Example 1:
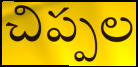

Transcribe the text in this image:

చిప్పల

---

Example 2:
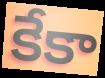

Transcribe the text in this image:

కేకా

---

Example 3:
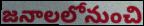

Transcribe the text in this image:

జనాలలోనుంచి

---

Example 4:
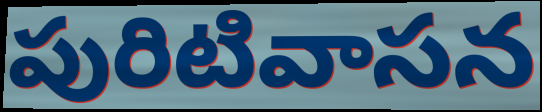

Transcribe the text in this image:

పురిటివాసన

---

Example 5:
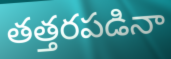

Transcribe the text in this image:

తత్తరపడినా